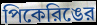
পিকেরিঙের